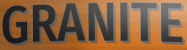
GRANITE